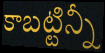
కాబట్టిన్నీ